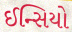
ઈન્સિયો